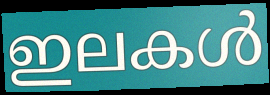
ഇലകൾ